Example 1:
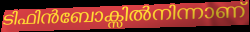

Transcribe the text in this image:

ടിഫിൻബോക്സിൽനിന്നാണ്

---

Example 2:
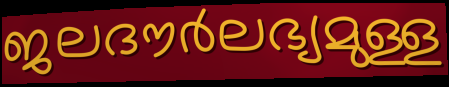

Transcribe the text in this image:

ജലദൗർലഭ്യമുള്ള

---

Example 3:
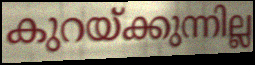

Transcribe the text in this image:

കുറയ്ക്കുന്നില്ല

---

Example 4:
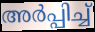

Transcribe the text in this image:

അർപ്പിച്ച്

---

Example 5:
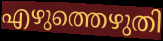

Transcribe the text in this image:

എഴുത്തെഴുതി